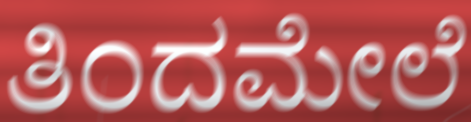
ತಿಂದಮೇಲೆ